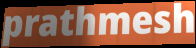
prathmesh